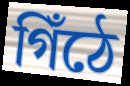
গিঁঠে